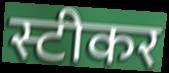
स्टीकर